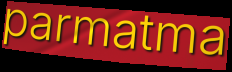
parmatma